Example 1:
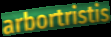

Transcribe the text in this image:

arbortristis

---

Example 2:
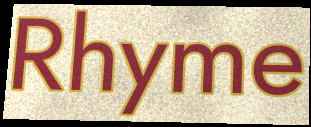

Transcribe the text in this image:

Rhyme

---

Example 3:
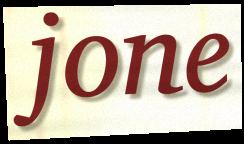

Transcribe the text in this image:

jone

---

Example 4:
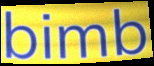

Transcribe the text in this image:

bimb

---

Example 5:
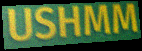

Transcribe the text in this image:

USHMM